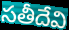
సతీదేవి